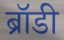
ब्रॉडी